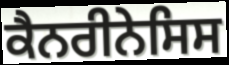
ਕੈਨਰੀਨੇਸਿਸ